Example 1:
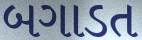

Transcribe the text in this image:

બગાડત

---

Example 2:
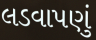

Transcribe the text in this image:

લડવાપણું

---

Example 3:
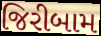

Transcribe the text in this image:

જિરીબામ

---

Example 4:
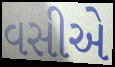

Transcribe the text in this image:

વસીએ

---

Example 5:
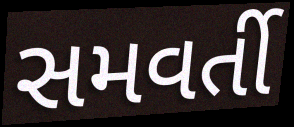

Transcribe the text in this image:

સમવર્તી